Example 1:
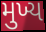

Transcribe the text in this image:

મુખ્ય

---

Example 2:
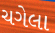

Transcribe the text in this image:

ચગેલા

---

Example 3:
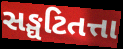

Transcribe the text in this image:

સઙ્ઘટિતત્તા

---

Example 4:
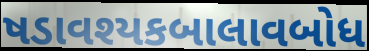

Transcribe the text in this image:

ષડાવશ્યકબાલાવબોધ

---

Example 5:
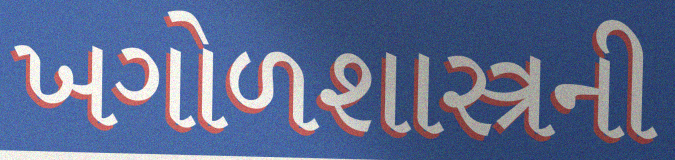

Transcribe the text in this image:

ખગોળશાસ્ત્રની